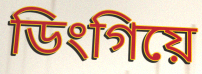
ডিংগিয়ে